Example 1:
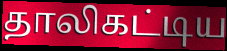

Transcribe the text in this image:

தாலிகட்டிய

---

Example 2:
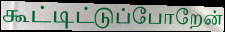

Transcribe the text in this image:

கூட்டிட்டுப்போறேன்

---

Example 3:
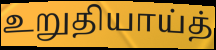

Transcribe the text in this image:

உறுதியாய்த்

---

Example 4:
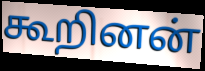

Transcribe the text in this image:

கூறினன்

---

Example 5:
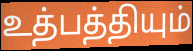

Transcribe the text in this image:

உத்பத்தியும்